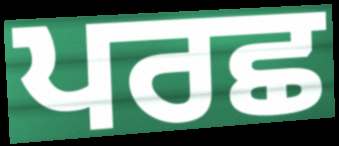
ਪਰਛ